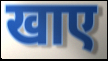
खाए